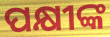
ପକ୍ଷୀଙ୍କ